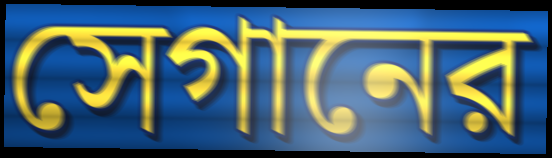
সেগানের